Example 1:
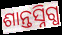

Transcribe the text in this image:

ଶାନ୍ତସ୍ନିଗ୍ଧ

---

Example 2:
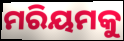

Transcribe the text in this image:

ମରିୟମକୁ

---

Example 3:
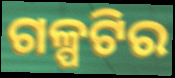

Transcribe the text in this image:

ଗଳ୍ପଟିର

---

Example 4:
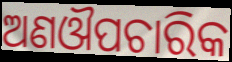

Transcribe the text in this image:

ଅଣଔପଚାରିକ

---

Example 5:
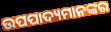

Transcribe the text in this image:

ଉପପାଦ୍ୟମାନଙ୍କର